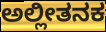
ಅಲ್ಲೀತನಕ